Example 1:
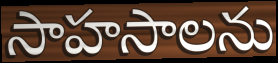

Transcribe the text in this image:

సాహసాలను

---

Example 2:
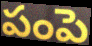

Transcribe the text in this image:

పంపె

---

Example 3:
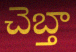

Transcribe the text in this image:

చెబ్తా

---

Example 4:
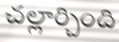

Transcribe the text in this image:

చల్లార్చింది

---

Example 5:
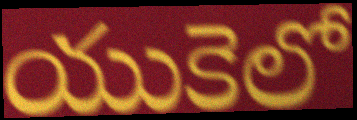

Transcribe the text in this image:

యుకెలో